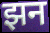
झन